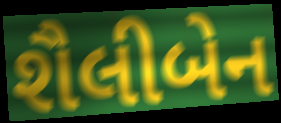
શૈલીબેન